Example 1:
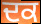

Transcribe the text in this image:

ਦਕ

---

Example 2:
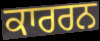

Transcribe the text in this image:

ਕਾਰਰਨ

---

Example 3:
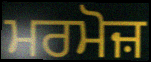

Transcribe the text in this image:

ਮਰਮੋਜ਼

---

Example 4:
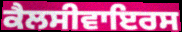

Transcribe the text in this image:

ਕੈਲਸੀਵਾਇਰਸ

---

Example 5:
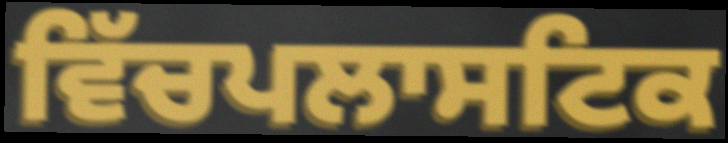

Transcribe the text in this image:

ਵਿੱਚਪਲਾਸਟਿਕ